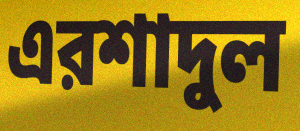
এরশাদুল